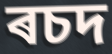
ৰচদ